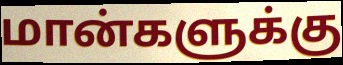
மான்களுக்கு